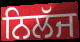
ਨਿਲੱਜ